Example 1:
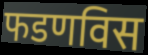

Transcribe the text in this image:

फडणविस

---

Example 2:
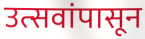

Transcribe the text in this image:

उत्सवांपासून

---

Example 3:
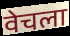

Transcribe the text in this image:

वेचला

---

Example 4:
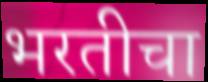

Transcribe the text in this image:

भरतीचा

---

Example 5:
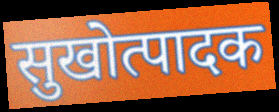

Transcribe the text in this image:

सुखोत्पादक